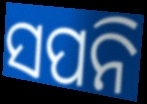
ସପନି